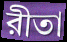
রীতা